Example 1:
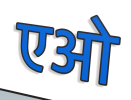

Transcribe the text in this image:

एओ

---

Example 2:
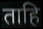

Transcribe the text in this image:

ताहि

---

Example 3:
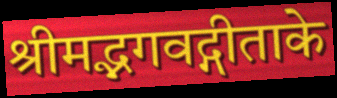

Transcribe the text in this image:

श्रीमद्भगवद्गीताके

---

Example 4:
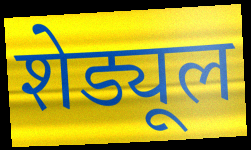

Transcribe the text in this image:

शेड्यूल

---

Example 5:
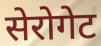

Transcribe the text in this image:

सेरोगेट